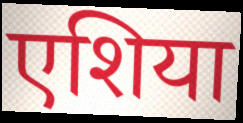
एशिया